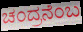
ಚಂದ್ರನೆಂಬ